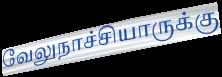
வேலுநாச்சியாருக்கு